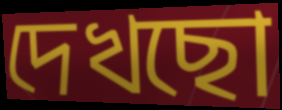
দেখছো